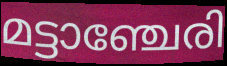
മട്ടാഞ്ചേരി